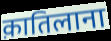
क़ातिलाना